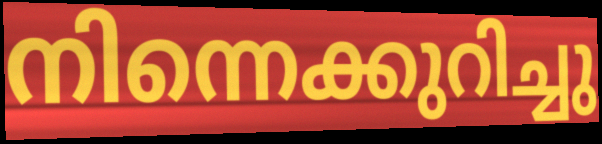
നിന്നെക്കുറിച്ചു